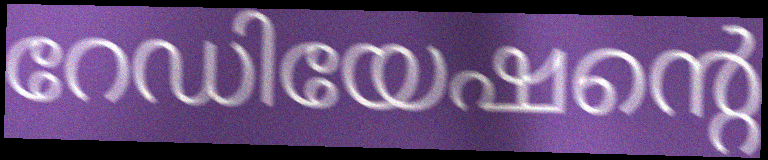
റേഡിയേഷന്റെ